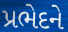
પ્રભેદને